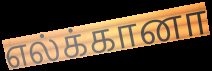
எல்க்கானா